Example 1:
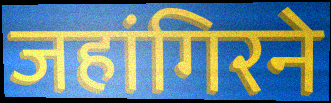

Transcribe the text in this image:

जहांगिरने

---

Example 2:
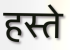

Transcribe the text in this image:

हस्ते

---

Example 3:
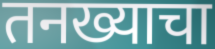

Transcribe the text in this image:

तनख्याचा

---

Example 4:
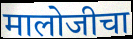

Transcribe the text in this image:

मालोजीचा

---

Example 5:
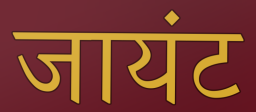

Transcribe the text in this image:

जायंट